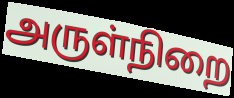
அருள்நிறை